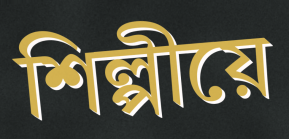
শিল্পীয়ে